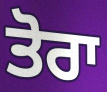
ਤੋਰਾ